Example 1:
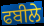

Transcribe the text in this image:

ਫਬੀਲੇ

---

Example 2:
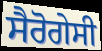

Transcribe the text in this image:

ਸੈਰੋਗੇਸੀ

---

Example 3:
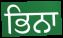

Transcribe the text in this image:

ਭਿਨਾ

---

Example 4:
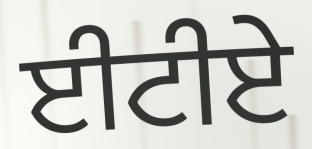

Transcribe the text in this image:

ਈਟੀਏ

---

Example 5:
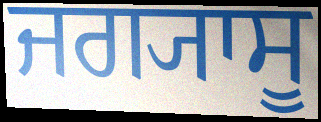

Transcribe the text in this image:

ਜਗ੍ਯਾਸੂ